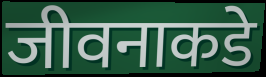
जीवनाकडे